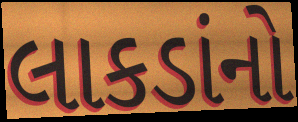
લાકડાંનો